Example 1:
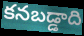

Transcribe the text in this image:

కనబడ్డాది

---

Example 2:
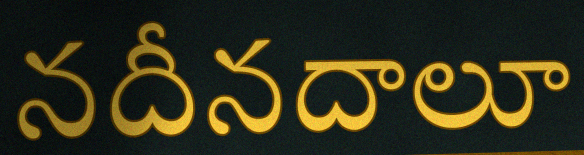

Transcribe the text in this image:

నదీనదాలూ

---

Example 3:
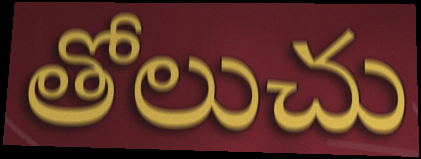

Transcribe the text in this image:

తోలుచు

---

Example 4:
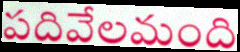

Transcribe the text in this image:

పదివేలమంది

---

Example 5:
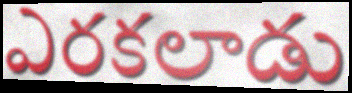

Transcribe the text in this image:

ఎరకలాడు